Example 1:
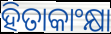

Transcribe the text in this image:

ହିତାକାଂକ୍ଷା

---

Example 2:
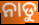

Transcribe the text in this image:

ନାଡୁ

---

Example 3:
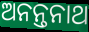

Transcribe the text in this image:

ଅନନ୍ତନାଥ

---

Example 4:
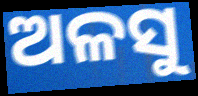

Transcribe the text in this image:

ଅଳସୁ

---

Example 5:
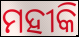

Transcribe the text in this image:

ମହୀକି